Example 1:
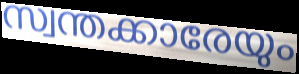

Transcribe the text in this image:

സ്വന്തക്കാരേയും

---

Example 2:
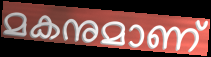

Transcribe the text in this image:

മകനുമാണ്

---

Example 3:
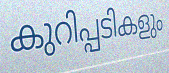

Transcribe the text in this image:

കുറിപ്പടികളും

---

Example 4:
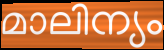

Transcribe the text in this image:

മാലിന്യം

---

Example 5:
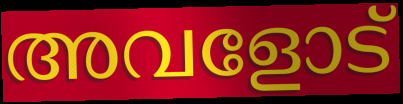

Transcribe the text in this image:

അവളോട്